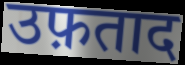
उफ़ताद